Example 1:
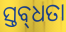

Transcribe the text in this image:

ସ୍ତବ୍‌ଧତା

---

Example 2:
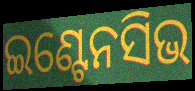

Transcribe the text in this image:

ଇଣ୍ଟେନସିଭ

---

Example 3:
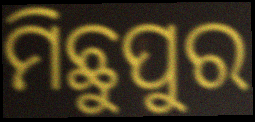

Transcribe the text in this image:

ମିଛୁପୁର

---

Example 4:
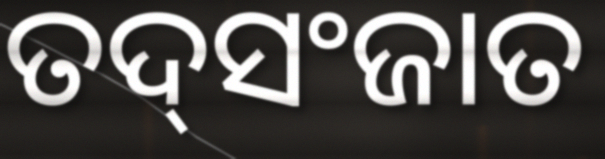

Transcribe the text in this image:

ତଦ୍‌ସଂଜାତ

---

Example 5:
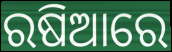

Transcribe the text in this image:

ରଷିଆରେ